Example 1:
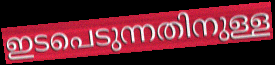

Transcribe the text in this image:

ഇടപെടുന്നതിനുള്ള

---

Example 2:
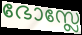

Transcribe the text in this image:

ഭോസ്ലേ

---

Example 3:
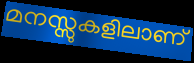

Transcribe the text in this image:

മനസ്സുകളിലാണ്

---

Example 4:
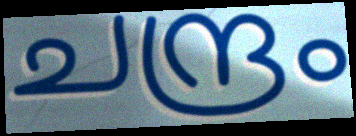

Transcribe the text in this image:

ചന്ദ്രം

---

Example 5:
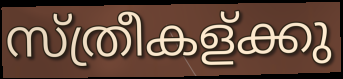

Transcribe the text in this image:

സ്ത്രീകള്ക്കു